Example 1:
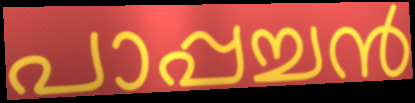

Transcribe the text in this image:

പാപ്പച്ചൻ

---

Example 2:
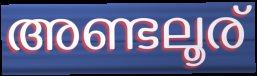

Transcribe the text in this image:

അണ്ടലൂര്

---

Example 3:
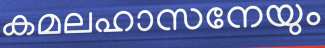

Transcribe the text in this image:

കമലഹാസനേയും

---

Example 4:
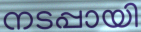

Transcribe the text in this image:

നടപ്പായി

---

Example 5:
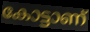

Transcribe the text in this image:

കോട്ടാണ്